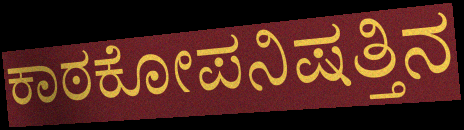
ಕಾಠಕೋಪನಿಷತ್ತಿನ